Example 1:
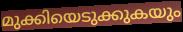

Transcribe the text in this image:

മുക്കിയെടുക്കുകയും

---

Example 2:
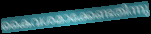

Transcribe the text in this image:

കൈവശമാക്കേണ്ടതിന്നു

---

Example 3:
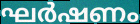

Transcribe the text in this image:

ഘർഷണം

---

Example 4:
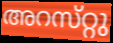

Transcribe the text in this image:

അറസ്‌റ്റു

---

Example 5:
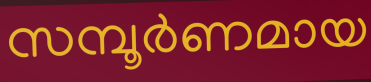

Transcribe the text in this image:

സമ്പൂർണമായ